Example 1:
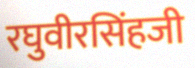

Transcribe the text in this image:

रघुवीरसिंहजी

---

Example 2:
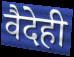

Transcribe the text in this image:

वैदेही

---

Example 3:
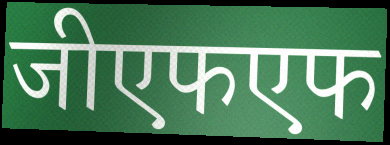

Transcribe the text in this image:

जीएफएफ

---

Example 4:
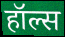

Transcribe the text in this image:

हॉल्स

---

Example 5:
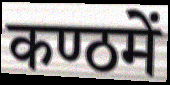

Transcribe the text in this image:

कण्ठमें